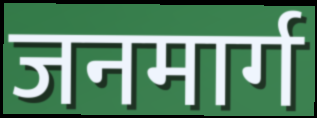
जनमार्ग